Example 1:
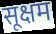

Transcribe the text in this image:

सूक्षम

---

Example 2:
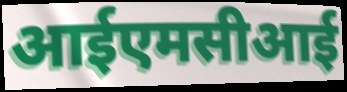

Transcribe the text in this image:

आईएमसीआई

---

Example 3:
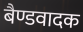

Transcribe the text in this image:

बैण्डवादक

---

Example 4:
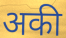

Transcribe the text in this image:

अकी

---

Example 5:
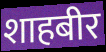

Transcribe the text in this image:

शाहबीर